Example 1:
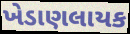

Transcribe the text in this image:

ખેડાણલાયક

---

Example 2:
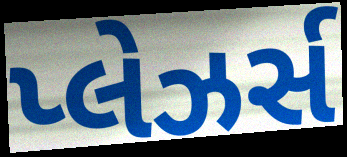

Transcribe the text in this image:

પ્લેઝર્સ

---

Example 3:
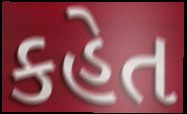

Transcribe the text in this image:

કહેત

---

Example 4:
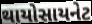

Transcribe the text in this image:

થાયોસાયનેટ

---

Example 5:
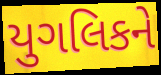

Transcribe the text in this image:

યુગલિકને